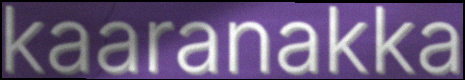
kaaranakka